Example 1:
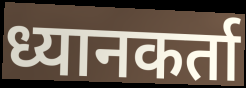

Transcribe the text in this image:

ध्यानकर्ता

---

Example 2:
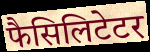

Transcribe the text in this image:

फैसिलिटेटर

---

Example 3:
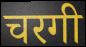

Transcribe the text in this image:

चरगी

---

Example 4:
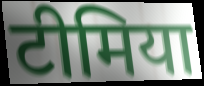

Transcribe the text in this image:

टीमिया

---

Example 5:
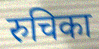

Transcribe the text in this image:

रुचिका